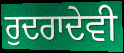
ਰੁਦਰਾਦੇਵੀ